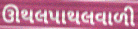
ઊથલપાથલવાળી